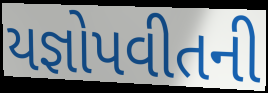
યજ્ઞોપવીતની